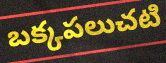
బక్కపలుచటి